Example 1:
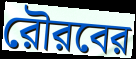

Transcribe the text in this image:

রৌরবের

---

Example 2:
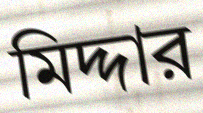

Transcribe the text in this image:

মিদ্দার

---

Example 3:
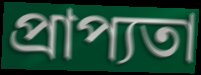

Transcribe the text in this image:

প্রাপ্যতা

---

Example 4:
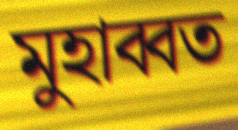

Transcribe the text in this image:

মুহাব্বত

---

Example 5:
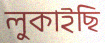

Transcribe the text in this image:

লুকাইছি